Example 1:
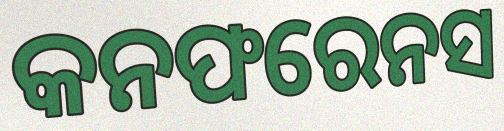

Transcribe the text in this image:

କନଫରେନସ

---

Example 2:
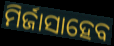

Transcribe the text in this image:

ମିର୍ଜାସାହେବ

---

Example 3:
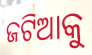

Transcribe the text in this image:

ଜଟିଆକୁ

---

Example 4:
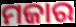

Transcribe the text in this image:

ମଜାର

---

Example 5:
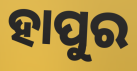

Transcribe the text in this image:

ହାପୁର